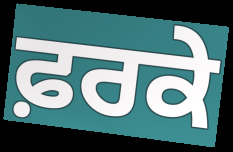
ਫ਼ਰਕੇ